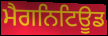
ਮੈਗਨਿਟਿਊਡ